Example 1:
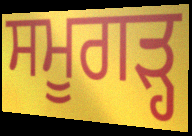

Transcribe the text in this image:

ਸਮੂਗੜ੍ਹ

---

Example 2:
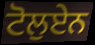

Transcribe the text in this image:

ਟੋਲੁਏਨ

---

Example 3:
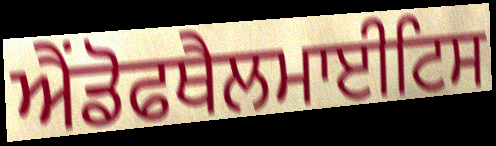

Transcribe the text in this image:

ਐਂਡੋਫਥੈਲਮਾਈਟਿਸ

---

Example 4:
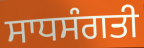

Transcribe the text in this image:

ਸਾਧਸੰਗਤੀ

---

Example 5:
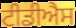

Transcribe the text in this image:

ਟੀਡੀਐਸ